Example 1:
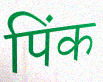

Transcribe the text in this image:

पिंक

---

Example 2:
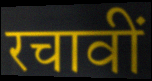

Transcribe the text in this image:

रचावीं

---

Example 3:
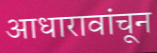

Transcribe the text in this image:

आधारावांचून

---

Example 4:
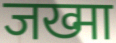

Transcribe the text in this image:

जख्मा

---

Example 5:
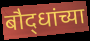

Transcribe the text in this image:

बौद्धांच्या